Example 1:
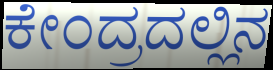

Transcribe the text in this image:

ಕೇಂದ್ರದಲ್ಲಿನ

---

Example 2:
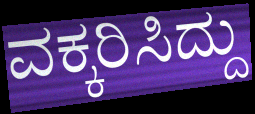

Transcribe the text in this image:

ವಕ್ಕರಿಸಿದ್ದು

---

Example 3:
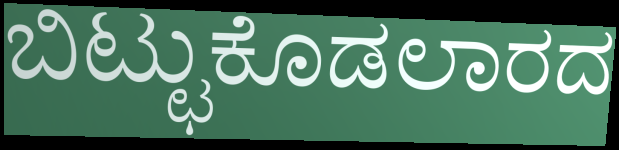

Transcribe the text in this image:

ಬಿಟ್ಟುಕೊಡಲಾರದ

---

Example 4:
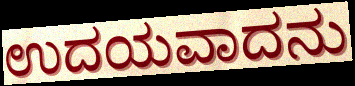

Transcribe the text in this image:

ಉದಯವಾದನು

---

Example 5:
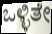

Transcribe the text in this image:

ಒಳ್ಳಿತೇ